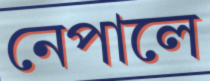
নেপালে